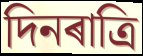
দিনৰাত্ৰি